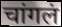
चांगलं